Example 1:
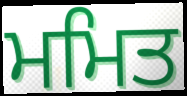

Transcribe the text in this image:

ਮਮਿਤ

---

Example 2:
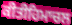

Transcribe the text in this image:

ਕੀਤੀਹਿਮਾਚਲ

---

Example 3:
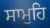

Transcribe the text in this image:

ਸਾਮੁਹਿ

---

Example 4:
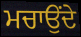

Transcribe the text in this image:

ਮਚਾਉਂਦੇ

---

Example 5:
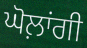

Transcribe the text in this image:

ਘੋਲ਼ਾਂਗੀ